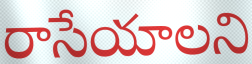
రాసేయాలని